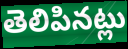
తెలిపినట్లు